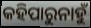
କହିପାରୁନାହୁଁ